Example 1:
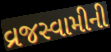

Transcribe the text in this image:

વ્રજસ્વામીની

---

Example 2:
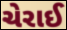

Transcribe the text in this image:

ચેરાઈ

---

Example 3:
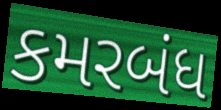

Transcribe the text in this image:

કમરબંધ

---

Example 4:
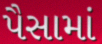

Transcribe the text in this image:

પૈસામાં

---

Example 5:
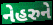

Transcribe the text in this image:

નેહરુને